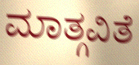
ಮಾತ್ಗವಿತೆ